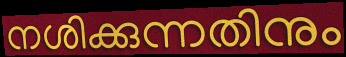
നശിക്കുന്നതിനും